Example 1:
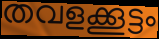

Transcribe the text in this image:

തവളക്കൂട്ടം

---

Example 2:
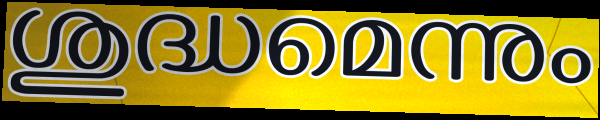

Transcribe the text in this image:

ശുദ്ധമെന്നും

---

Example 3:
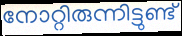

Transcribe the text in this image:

നോറ്റിരുന്നിട്ടുണ്ട്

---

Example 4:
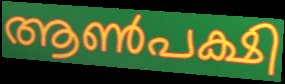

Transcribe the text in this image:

ആൺപക്ഷി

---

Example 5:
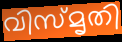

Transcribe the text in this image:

വിസ്മൃതി